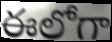
ఈలోగా